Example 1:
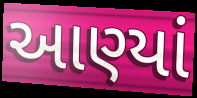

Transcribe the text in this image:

આણ્યાં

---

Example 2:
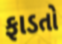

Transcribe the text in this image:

ફાડતો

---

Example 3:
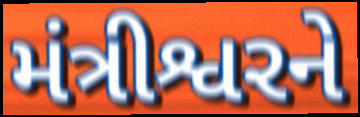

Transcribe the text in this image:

મંત્રીશ્વરને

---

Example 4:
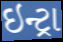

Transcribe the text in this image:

ઇન્ટ્રા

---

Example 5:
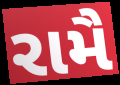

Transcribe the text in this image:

રામૈ